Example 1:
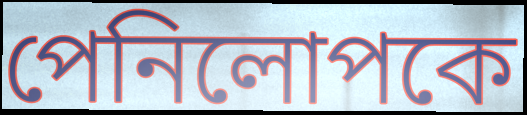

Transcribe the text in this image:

পেনিলোপকে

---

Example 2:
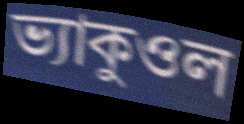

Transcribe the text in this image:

ভ্যাকুওল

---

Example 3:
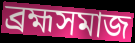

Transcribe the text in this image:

ব্রহ্মসমাজ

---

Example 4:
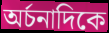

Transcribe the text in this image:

অর্চনাদিকে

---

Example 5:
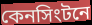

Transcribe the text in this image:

কেনসিংটনে